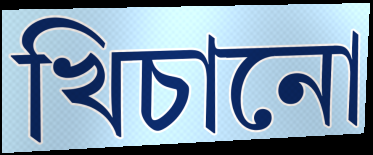
খিচানো